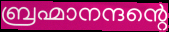
ബ്രഹ്മാനന്ദന്റെ